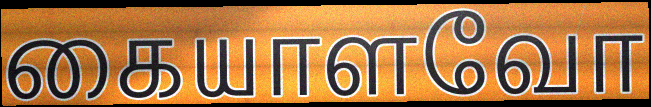
கையாளவோ